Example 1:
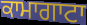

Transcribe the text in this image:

ਕਾਮਾਗਾਟਾ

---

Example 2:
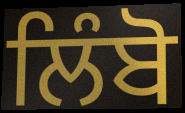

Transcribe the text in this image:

ਲਿੰਬੋ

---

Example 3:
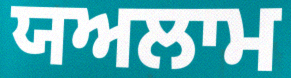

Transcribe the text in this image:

ਯਅਲਾਮ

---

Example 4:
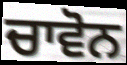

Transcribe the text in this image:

ਚਾਵੋਨ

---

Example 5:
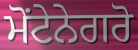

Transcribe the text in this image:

ਮੋਂਟੇਨੇਗਰੋ